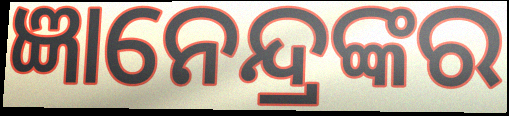
ଜ୍ଞାନେନ୍ଦ୍ରଙ୍କର